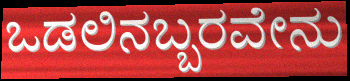
ಒಡಲಿನಬ್ಬರವೇನು